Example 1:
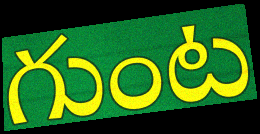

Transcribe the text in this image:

గుంట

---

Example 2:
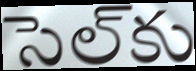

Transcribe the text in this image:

సెల్‌కు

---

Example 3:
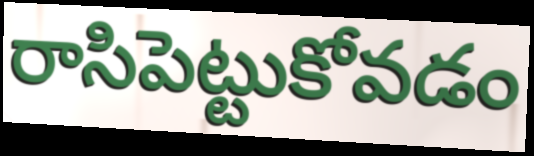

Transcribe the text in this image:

రాసిపెట్టుకోవడం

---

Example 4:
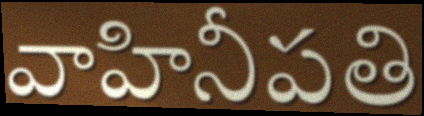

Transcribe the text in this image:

వాహినీపతి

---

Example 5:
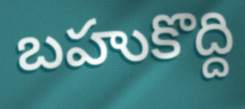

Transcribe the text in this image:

బహుకొద్ది